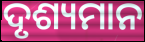
ଦୃଶ୍ୟମାନ